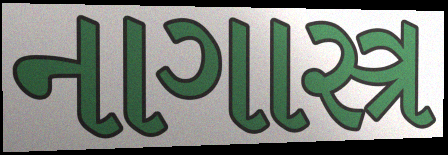
નાગાસ્ત્ર